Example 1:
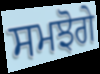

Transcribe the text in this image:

ਸਮਝੋਗੇ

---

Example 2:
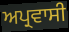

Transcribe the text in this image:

ਅਪ੍ਰਵਾਸੀ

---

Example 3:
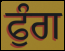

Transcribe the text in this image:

ਫੁੰਗ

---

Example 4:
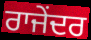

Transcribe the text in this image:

ਰਾਜੇਂਦਰ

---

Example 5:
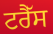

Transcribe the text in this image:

ਟਰੈੱਸ